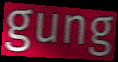
gung